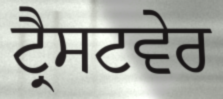
ਟ੍ਰੈਸਟਵੇਰ